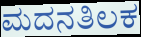
ಮದನತಿಲಕ